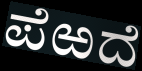
ಪೆಱದೆ